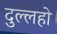
दुल्लहो